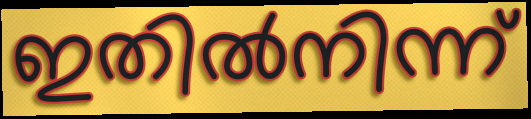
ഇതിൽനിന്ന്